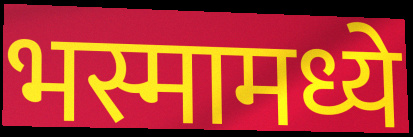
भस्मामध्ये